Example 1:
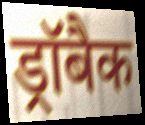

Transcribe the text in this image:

ड्रॉबैक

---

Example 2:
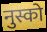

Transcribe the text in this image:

नुस्को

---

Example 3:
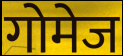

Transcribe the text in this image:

गोमेज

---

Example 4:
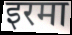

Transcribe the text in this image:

इरमा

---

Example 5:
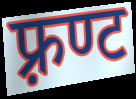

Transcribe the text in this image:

फ़्रण्ट